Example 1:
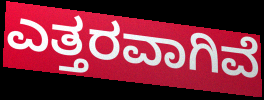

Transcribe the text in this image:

ಎತ್ತರವಾಗಿವೆ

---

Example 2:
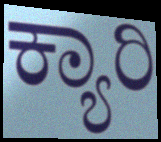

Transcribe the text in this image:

ಕ್ಯಾರಿ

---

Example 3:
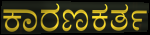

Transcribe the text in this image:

ಕಾರಣಕರ್ತ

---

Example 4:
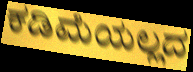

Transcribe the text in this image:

ಕಡಿಮೆಯಲ್ಲದ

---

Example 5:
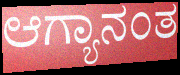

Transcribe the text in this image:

ಆಗ್ಯಾನಂತ